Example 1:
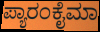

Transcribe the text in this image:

ಪ್ಯಾರಂಕೈಮಾ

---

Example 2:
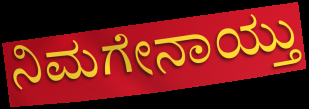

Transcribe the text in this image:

ನಿಮಗೇನಾಯ್ತು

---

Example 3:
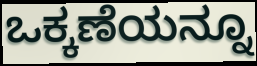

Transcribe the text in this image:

ಒಕ್ಕಣೆಯನ್ನೂ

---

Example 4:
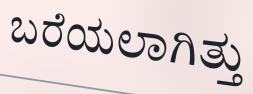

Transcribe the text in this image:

ಬರೆಯಲಾಗಿತ್ತು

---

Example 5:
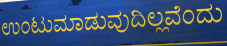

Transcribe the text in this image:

ಉಂಟುಮಾಡುವುದಿಲ್ಲವೆಂದು